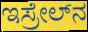
ಇಸ್ರೇಲ್‍ನ